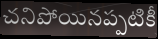
చనిపోయినప్పటికీ